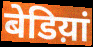
बेडिय़ां